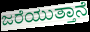
ಜರೆಯುತ್ತಾನೆ